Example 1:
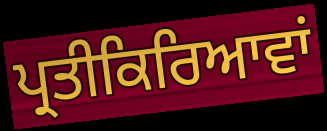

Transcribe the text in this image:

ਪ੍ਰਤੀਕਿਰਿਆਵਾਂ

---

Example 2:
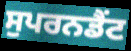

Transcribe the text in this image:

ਸੁਪਰਨਡੈਂਟ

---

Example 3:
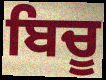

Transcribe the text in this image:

ਬਿਚੂ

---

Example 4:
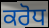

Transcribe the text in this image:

ਕਰੋਧ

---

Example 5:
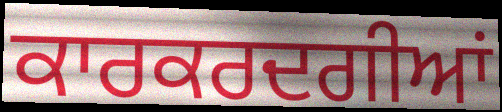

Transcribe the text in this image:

ਕਾਰਕਰਦਗੀਆਂ